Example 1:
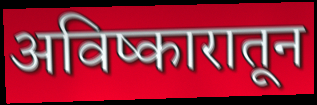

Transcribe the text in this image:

अविष्कारातून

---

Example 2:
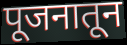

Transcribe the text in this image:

पूजनातून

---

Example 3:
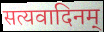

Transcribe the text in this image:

सत्यवादिनम्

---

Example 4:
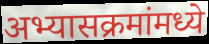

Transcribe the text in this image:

अभ्यासक्रमांमध्ये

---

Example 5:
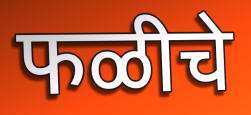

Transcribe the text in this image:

फळीचे